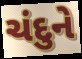
ચંદુને